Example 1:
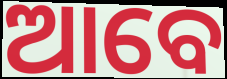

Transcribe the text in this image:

ଆବେ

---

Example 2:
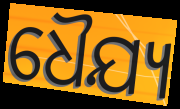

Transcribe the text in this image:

ଧୈଯ୍ୟ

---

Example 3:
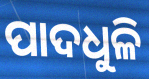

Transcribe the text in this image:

ପାଦଧୁଳି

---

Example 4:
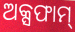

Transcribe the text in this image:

ଅକ୍ସଫାମ୍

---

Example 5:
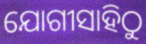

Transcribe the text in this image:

ଯୋଗୀସାହିଠୁ